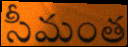
సీమంత